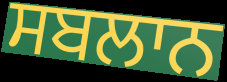
ਸਬਲਾਨ